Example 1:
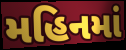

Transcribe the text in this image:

મહિનમાં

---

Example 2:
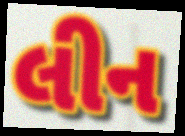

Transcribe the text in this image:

લીન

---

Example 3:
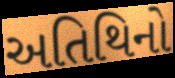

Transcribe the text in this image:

અતિથિનો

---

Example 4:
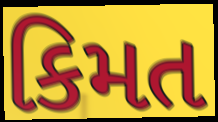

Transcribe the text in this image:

કિમત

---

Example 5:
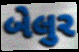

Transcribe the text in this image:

બેલુર